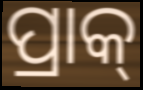
ପ୍ରାକ୍